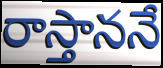
రాస్తాననే